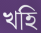
খহি